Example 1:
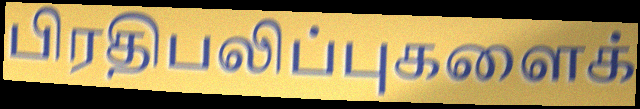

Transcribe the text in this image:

பிரதிபலிப்புகளைக்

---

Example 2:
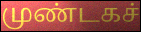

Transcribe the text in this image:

முண்டகச்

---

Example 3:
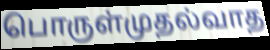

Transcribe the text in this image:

பொருள்முதல்வாத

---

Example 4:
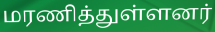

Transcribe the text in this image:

மரணித்துள்ளனர்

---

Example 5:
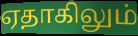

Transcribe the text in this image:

ஏதாகிலும்